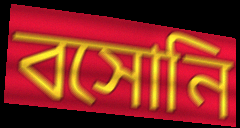
বসোনি